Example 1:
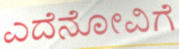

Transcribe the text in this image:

ಎದೆನೋವಿಗೆ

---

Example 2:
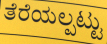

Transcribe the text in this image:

ತೆರೆಯಲ್ಪಟ್ಟು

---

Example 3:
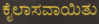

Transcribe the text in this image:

ಕೈಲಾಸವಾಯಿತು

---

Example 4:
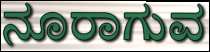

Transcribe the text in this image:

ನೂರಾಗುವ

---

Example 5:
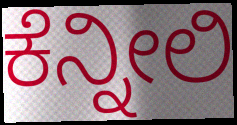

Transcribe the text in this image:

ಕೆನ್ನೀಲಿ